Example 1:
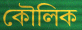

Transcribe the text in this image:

কৌলিক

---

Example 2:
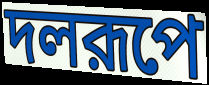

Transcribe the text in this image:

দলরূপে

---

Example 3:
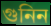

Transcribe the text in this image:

গুনিন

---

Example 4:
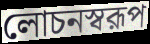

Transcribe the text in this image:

লোচনস্বরূপ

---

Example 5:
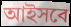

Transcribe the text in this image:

আইসবে